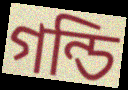
গন্ডি